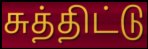
சுத்திட்டு